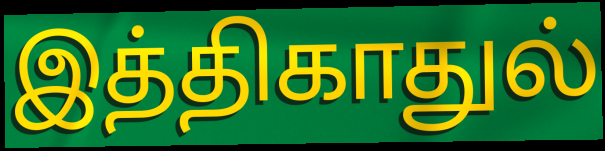
இத்திகாதுல்